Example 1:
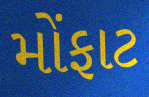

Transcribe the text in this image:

મોંફાટ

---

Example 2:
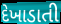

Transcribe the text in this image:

દેખાડાતી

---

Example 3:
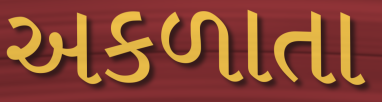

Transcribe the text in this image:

અકળાતા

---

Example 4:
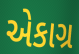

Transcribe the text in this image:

એકાગ્ર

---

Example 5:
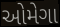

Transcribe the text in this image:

ઓમેગા